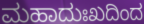
ಮಹಾದುಃಖದಿಂದ